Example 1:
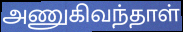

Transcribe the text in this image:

அணுகிவந்தாள்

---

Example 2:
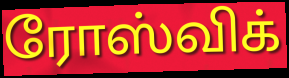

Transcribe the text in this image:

ரோஸ்விக்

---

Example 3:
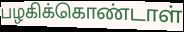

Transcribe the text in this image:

பழகிக்கொண்டாள்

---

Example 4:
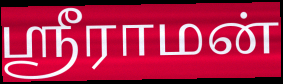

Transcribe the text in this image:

ஸ்ரீராமன்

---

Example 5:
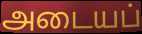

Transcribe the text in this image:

அடையப்